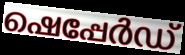
ഷെപ്പേർഡ്